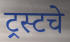
ट्रस्टचे